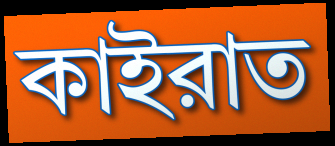
কাইরাত